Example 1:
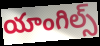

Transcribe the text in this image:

యాంగిల్స్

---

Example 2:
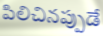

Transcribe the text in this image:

పిలిచినప్పుడే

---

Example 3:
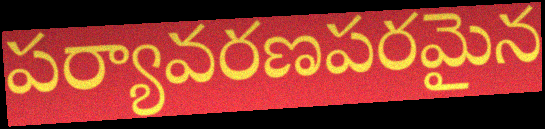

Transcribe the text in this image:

పర్యావరణపరమైన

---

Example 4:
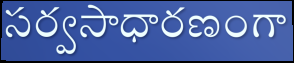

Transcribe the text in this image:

సర్వసాధారణంగా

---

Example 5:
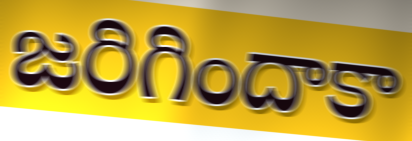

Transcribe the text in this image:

జరిగిందాకా